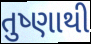
તુષ્ણાથી